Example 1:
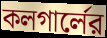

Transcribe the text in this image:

কলগার্লের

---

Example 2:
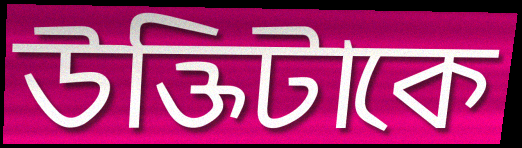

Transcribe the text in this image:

উক্তিটাকে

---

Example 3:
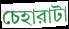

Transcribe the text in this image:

চেহারাটা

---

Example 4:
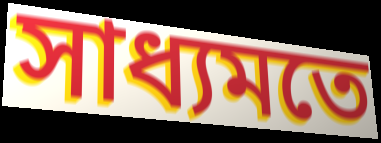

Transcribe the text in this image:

সাধ্যমতে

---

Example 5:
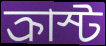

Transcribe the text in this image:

ক্রাস্ট